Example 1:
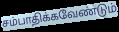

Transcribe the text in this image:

சம்பாதிக்கவேண்டும்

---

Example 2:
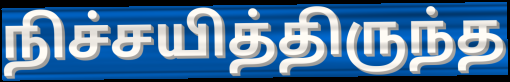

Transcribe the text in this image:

நிச்சயித்திருந்த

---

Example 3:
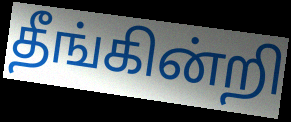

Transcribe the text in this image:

தீங்கின்றி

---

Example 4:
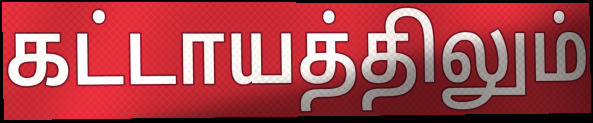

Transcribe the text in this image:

கட்டாயத்திலும்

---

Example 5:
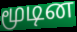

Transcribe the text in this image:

மூடின